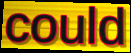
could